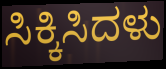
ಸಿಕ್ಕಿಸಿದಳು